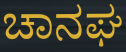
ಚಾನಘ